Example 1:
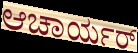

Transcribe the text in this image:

ಆಚಾರ್ಯರ್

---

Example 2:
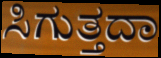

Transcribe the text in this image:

ಸಿಗುತ್ತದಾ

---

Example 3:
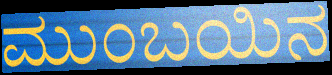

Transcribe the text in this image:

ಮುಂಬಯಿನ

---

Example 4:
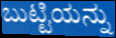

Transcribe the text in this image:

ಬುಟ್ಟಿಯನ್ನು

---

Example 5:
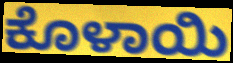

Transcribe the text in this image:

ಕೊಳಾಯಿ